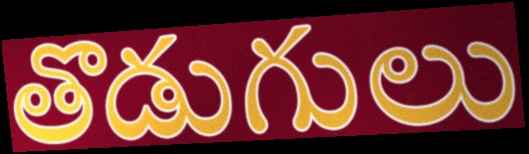
తొడుగులు